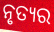
ନୃତ୍ୟର